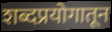
शब्दप्रयोगातून